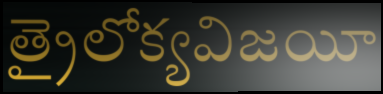
త్రైలోక్యవిజయీ